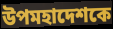
উপমহাদেশকে